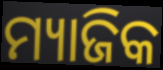
ମ୍ୟାଜିକ